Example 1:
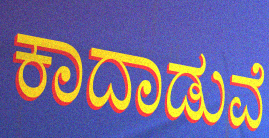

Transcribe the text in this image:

ಕಾದಾಡುವೆ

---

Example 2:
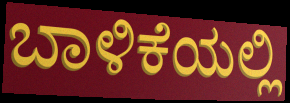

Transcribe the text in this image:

ಬಾಳಿಕೆಯಲ್ಲಿ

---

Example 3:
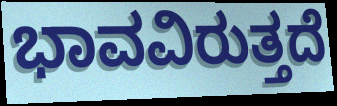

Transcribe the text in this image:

ಭಾವವಿರುತ್ತದೆ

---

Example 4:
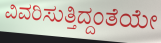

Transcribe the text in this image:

ವಿವರಿಸುತ್ತಿದ್ದಂತೆಯೇ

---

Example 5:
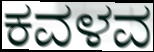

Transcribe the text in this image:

ಕವಳವ